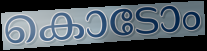
കൊടോം